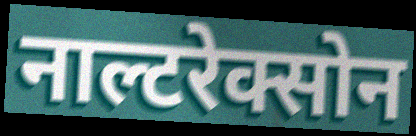
नाल्टरेक्सोन